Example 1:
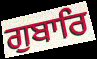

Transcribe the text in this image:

ਗੁਬਾਰਿ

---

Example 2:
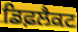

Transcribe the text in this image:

ਡਿਫ਼ਲੈਕਟ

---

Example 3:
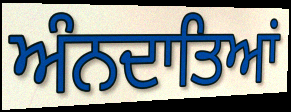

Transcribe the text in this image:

ਅੰਨਦਾਤਿਆਂ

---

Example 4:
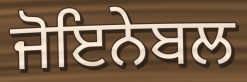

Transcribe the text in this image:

ਜੋਇਨੇਬਲ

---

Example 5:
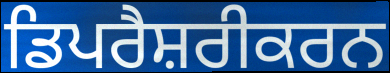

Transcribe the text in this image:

ਡਿਪਰੈਸ਼ਰੀਕਰਨ